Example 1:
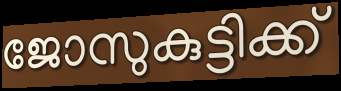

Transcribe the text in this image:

ജോസുകുട്ടിക്ക്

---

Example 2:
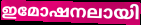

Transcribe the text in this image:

ഇമോഷനലായി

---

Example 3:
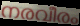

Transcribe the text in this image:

നരവീരം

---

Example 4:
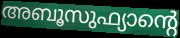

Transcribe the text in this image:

അബൂസുഫ്യാന്റെ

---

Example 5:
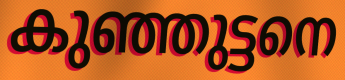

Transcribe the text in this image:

കുഞ്ഞുട്ടനെ